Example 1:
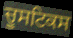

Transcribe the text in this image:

ਚੂਸਟਿਕਸ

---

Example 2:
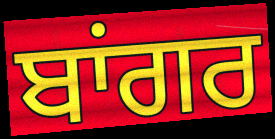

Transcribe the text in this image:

ਬਾਂਗਰ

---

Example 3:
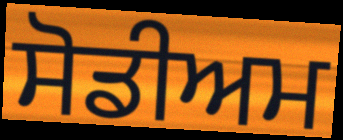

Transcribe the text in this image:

ਸੋਡੀਅਮ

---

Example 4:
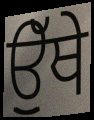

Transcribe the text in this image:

ਉੁੱਥੇ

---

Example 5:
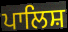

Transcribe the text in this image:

ਪਾਲਿਸ਼